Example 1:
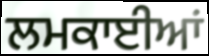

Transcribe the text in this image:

ਲਮਕਾਈਆਂ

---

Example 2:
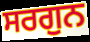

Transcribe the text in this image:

ਸਰਗੁਨ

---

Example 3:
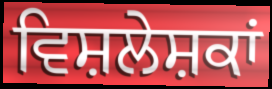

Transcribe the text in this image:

ਵਿਸ਼ਲੇਸ਼ਕਾਂ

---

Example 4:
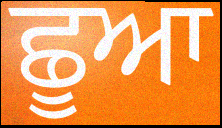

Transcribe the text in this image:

ਛੂਆ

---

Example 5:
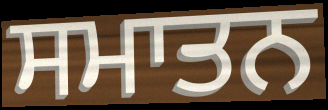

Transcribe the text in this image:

ਸਮਾਤਨ